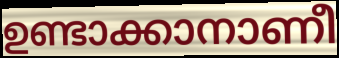
ഉണ്ടാക്കാനാണീ